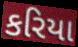
કરિયા